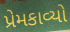
પ્રેમકાવ્યો